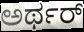
ಅರ್ಥರ್